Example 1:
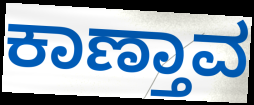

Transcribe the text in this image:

ಕಾಣ್ತಾವ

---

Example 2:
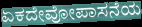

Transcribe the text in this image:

ಏಕದೇವೋಪಾಸನೆಯ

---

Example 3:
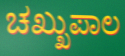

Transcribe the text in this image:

ಚಖ್ಖುಪಾಲ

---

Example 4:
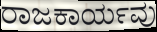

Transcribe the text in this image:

ರಾಜಕಾರ್ಯವು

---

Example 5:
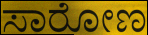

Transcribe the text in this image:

ಸಾರೋಣ